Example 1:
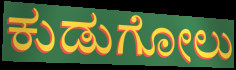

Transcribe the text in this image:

ಕುಡುಗೋಲು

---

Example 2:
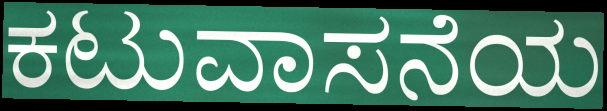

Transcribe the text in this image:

ಕಟುವಾಸನೆಯ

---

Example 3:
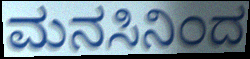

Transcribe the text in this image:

ಮನಸಿನಿಂದ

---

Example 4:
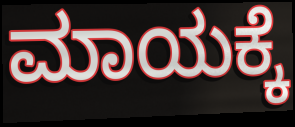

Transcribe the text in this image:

ಮಾಯಕ್ಕೆ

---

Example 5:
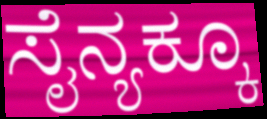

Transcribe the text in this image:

ಸೈನ್ಯಕ್ಕೂ